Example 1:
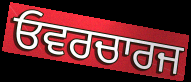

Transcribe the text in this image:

ਓਵਰਚਾਰਜ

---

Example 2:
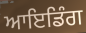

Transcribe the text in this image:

ਆਇਡਿੰਗ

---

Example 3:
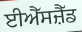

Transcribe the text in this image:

ਈਐੱਸਜ਼ੈੱਡ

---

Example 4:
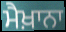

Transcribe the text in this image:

ਮੈਖ਼ਾਨਾ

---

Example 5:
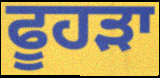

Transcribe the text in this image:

ਫੂਹੜਾ